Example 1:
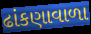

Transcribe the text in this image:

ઢાંકણાવાળા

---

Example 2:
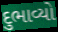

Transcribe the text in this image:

દુભાવ્યો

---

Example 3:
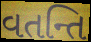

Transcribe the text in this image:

વતન્તિ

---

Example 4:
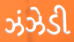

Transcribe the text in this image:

ઝંઝેડી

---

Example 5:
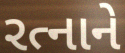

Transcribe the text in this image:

રત્નાને